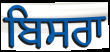
ਬਿਸਰਾ